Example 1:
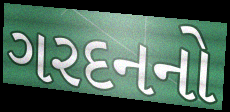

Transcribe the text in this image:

ગરદનનો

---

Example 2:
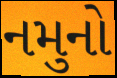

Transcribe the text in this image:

નમુનો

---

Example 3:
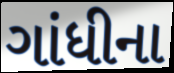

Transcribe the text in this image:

ગાંધીના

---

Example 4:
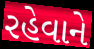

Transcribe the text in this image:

રહેવાને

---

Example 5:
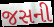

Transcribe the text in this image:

જસની